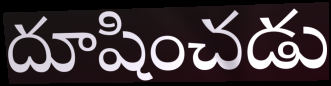
దూషించడు